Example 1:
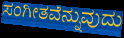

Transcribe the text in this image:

ಸಂಗೀತವೆನ್ನುವುದು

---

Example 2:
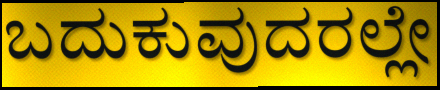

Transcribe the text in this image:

ಬದುಕುವುದರಲ್ಲೇ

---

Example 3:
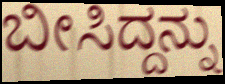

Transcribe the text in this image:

ಬೀಸಿದ್ದನ್ನು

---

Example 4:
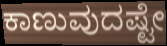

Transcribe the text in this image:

ಕಾಣುವುದಷ್ಟೇ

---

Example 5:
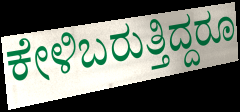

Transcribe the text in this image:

ಕೇಳಿಬರುತ್ತಿದ್ದರೂ